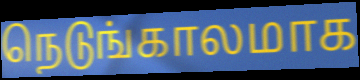
நெடுங்காலமாக